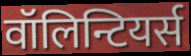
वॉलिन्टियर्स